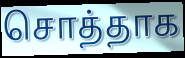
சொத்தாக